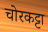
चोरकट्टा